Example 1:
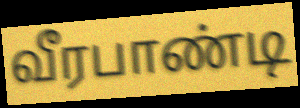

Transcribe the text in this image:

வீரபாண்டி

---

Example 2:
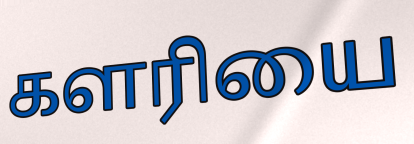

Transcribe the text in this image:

களரியை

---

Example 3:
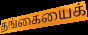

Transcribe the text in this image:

தங்கையைக்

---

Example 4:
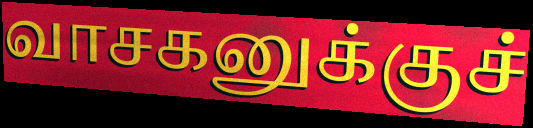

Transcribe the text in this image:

வாசகனுக்குச்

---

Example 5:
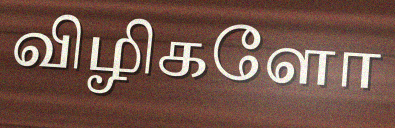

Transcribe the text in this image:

விழிகளோ